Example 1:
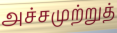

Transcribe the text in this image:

அச்சமுற்றுத்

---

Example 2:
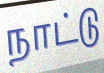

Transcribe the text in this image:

நாட்டு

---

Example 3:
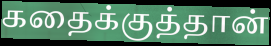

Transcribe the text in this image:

கதைக்குத்தான்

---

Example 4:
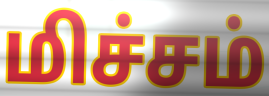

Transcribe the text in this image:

மிச்சம்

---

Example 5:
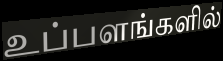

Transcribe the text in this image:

உப்பளங்களில்